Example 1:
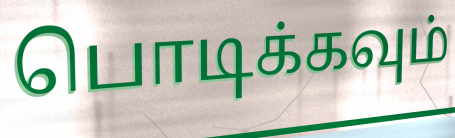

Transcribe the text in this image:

பொடிக்கவும்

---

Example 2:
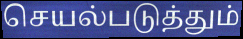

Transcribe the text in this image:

செயல்படுத்தும்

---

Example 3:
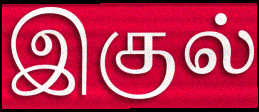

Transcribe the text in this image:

இகுல்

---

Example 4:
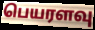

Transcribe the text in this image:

பெயரளவு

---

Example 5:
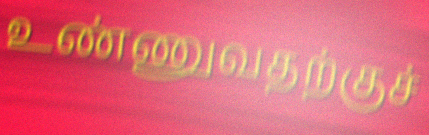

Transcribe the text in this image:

உண்ணுவதற்குச்